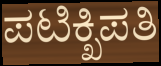
ಪಟಿಕ್ಖಿಪತಿ